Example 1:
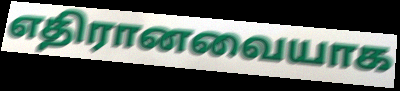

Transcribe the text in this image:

எதிரானவையாக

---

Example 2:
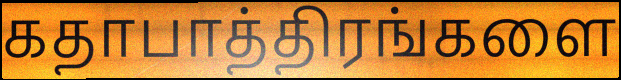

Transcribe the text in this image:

கதாபாத்திரங்களை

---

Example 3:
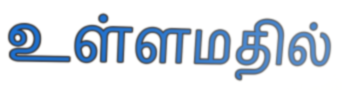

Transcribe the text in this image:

உள்ளமதில்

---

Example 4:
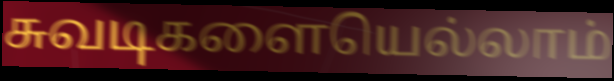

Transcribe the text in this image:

சுவடிகளையெல்லாம்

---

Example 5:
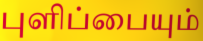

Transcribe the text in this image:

புளிப்பையும்